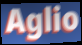
Aglio